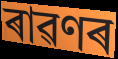
ৰাৱণৰ